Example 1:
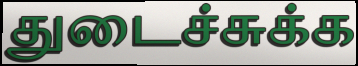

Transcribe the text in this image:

துடைச்சுக்க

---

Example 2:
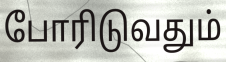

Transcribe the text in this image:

போரிடுவதும்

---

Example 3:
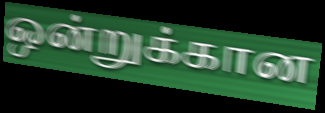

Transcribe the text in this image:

ஒன்றுக்கான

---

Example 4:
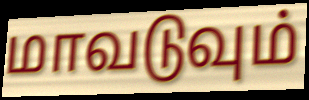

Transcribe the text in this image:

மாவடுவும்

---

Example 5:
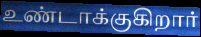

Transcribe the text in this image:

உண்டாக்குகிறார்